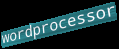
wordprocessor